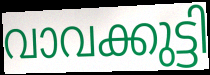
വാവക്കുട്ടി